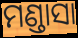
ମଣ୍ଡାସା